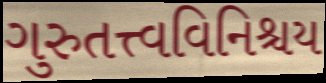
ગુરુતત્ત્વવિનિશ્ચય